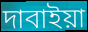
দাবাইয়া